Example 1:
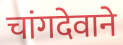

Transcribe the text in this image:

चांगदेवाने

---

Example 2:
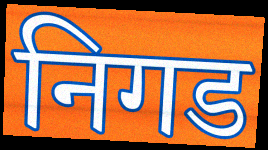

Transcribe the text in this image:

निगड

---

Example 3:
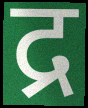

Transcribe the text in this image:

द्र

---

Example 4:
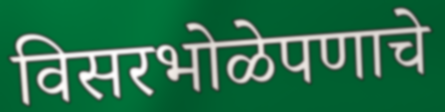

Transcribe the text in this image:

विसरभोळेपणाचे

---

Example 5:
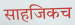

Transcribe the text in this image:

साहजिकच